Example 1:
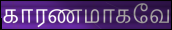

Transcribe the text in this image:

காரணமாகவே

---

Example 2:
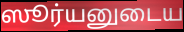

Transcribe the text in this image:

ஸூர்யனுடைய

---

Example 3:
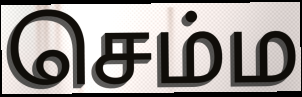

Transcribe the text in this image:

செம்ம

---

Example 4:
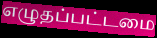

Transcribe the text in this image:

எழுதப்பட்டமை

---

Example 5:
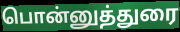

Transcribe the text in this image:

பொன்னுத்துரை